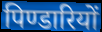
पिण्डारियों